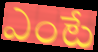
ఎంటే